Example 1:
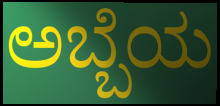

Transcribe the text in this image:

ಅಬ್ಬೆಯ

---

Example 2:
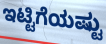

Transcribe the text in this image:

ಇಟ್ಟಿಗೆಯಷ್ಟು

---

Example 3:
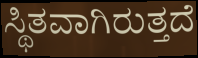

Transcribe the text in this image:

ಸ್ಥಿತವಾಗಿರುತ್ತದೆ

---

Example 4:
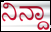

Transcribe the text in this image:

ನಿನ್ದಾ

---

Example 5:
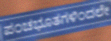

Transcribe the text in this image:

ಪಂಚಭೂತಗಳಿಂದಲೇ